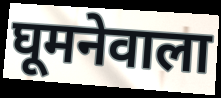
घूमनेवाला